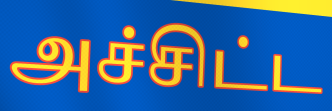
அச்சிட்ட